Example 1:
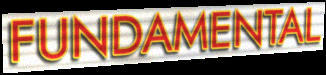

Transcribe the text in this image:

FUNDAMENTAL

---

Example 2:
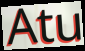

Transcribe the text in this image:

Atu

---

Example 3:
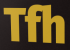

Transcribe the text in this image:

Tfh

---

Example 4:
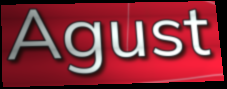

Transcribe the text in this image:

Agust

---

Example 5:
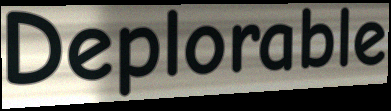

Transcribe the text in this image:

Deplorable